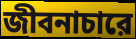
জীবনাচারে